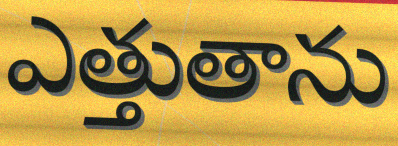
ఎత్తుతాను